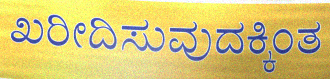
ಖರೀದಿಸುವುದಕ್ಕಿಂತ